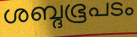
ശബ്ദഭൂപടം